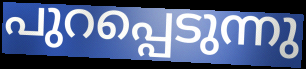
പുറപ്പെടുന്നു